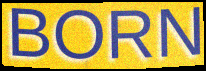
BORN